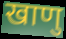
खाणु